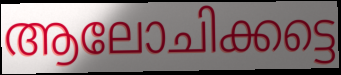
ആലോചിക്കട്ടെ